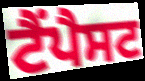
ਟੈਂਪੈਸਟ